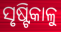
ସୃଷ୍ଟିକାଳୁ